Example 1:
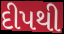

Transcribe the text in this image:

દીપથી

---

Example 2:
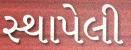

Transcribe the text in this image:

સ્‍થાપેલી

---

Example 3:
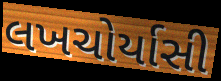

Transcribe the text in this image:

લખચોર્યાસી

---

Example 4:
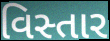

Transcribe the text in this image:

વિસ્તાર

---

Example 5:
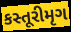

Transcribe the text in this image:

કસ્તૂરીમૃગ